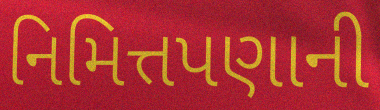
નિમિત્તપણાની